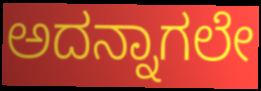
ಅದನ್ನಾಗಲೇ